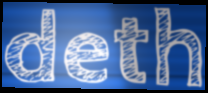
deth